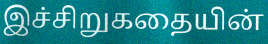
இச்சிறுகதையின்